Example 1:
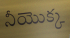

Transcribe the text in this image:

నీయొక్క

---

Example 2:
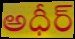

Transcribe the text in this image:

అధీర్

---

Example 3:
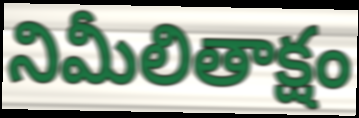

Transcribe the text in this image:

నిమీలితాక్షం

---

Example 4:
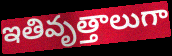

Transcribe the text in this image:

ఇతివృత్తాలుగా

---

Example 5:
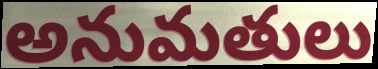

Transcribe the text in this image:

అనుమతులు